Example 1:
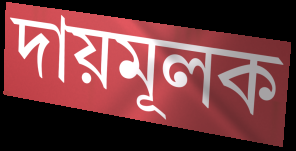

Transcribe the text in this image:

দায়মূলক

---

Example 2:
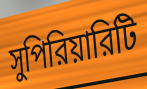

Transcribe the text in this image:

সুপিরিয়ারিটি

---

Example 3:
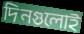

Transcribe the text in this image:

দিনগুলোই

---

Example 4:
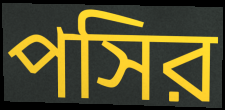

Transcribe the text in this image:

পসির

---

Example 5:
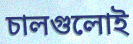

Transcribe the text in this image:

চালগুলোই